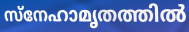
സ്നേഹാമൃതത്തിൽ